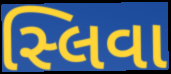
સ્લિવા